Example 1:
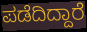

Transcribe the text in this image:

ಪಡೆದಿದ್ದಾರೆ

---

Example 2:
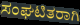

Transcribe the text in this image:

ಸಂಘಟಿತರಾಗಿ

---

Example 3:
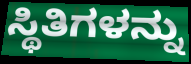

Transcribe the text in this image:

ಸ್ಥಿತಿಗಳನ್ನು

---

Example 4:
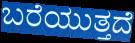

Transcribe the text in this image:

ಬರೆಯುತ್ತದೆ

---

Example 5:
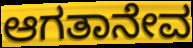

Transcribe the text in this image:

ಆಗತಾನೇವ